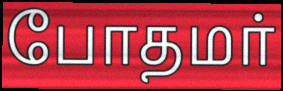
போதமர்